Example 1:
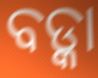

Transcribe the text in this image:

ବଡ୍କା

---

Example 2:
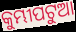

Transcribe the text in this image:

କୁମ୍ଭୀପଟୁଆ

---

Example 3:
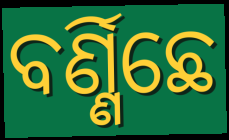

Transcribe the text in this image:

ବର୍ଣ୍ଣିଛେ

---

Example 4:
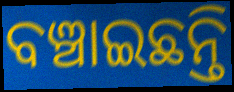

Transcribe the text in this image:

ବଞ୍ଚାଇଛନ୍ତି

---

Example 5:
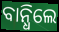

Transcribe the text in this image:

ବାନ୍ଧିଲେ